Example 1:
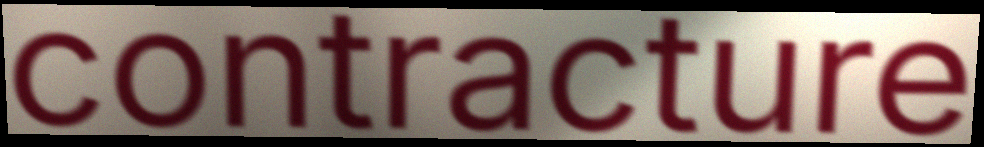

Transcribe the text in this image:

contracture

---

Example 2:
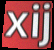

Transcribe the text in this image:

xij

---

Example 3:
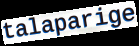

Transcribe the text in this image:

talaparige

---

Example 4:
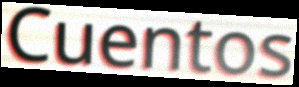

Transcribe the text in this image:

Cuentos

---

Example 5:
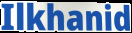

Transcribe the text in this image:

Ilkhanid